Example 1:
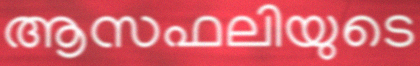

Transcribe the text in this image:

ആസഫലിയുടെ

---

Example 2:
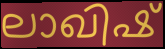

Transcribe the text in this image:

ലാഖിഷ്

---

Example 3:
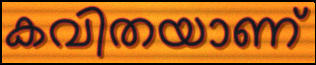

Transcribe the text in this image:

കവിതയാണ്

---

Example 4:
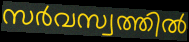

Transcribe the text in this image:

സർവസ്വത്തിൽ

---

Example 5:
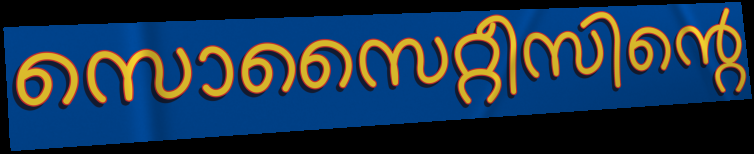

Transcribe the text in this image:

സൊസൈറ്റീസിന്റെ